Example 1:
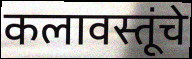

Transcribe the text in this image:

कलावस्तूंचे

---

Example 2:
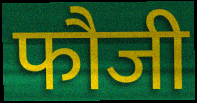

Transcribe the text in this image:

फौजी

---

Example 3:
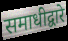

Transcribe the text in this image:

समाधीद्वारे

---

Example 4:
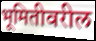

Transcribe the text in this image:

भूमितीवरील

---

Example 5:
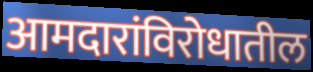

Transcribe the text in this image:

आमदारांविरोधातील